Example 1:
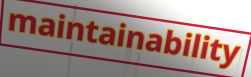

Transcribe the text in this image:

maintainability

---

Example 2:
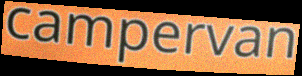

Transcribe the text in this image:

campervan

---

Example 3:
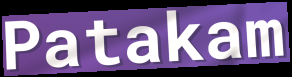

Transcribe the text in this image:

Patakam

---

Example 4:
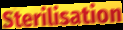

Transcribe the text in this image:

Sterilisation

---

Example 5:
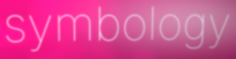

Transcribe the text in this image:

symbology